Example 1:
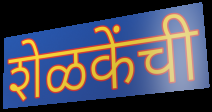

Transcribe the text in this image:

शेळकेंची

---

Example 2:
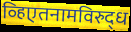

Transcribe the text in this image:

व्हिएतनामविरुद्ध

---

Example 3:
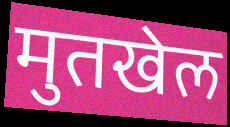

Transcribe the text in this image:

मुतखेल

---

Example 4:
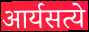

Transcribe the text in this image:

आर्यसत्ये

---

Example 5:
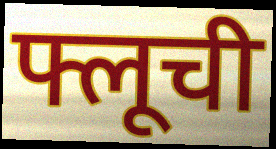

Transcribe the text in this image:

फ्लूची